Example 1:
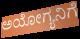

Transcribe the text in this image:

ಅಯೋಗ್ಯನಿಗೆ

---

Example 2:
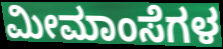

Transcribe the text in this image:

ಮೀಮಾಂಸೆಗಳ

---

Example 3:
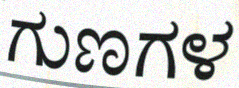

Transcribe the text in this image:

ಗುಣಗಳ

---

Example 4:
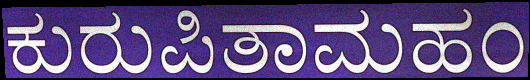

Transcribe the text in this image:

ಕುರುಪಿತಾಮಹಂ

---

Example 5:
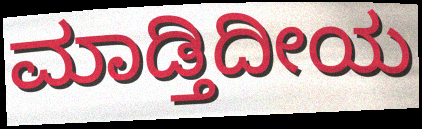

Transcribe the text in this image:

ಮಾಡ್ತಿದೀಯ